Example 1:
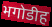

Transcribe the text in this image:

भगोडीह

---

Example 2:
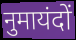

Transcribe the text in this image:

नुमायंदों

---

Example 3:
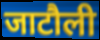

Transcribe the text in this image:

जाटौली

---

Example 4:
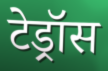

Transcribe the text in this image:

टेड्रॉस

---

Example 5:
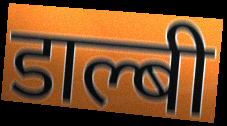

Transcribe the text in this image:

डाल्बी